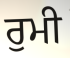
ਰੁਮੀ